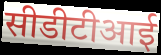
सीडीटीआई